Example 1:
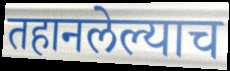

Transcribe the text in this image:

तहानलेल्याच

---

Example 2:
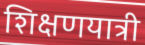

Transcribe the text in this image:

शिक्षणयात्री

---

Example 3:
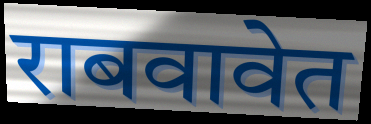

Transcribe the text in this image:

राबवावेत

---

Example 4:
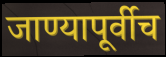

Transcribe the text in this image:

जाण्यापूर्वीच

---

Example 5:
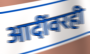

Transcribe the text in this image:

आदींवरही